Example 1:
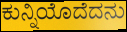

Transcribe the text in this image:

ಕುನ್ನಿಯೊದೆದನು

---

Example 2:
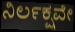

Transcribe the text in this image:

ನಿರ್ಲಕ್ಷವೇ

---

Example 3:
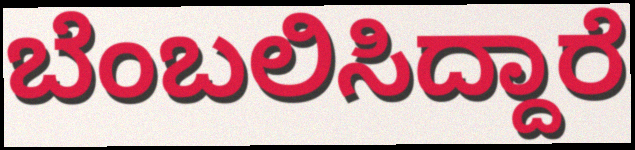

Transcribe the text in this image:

ಬೆಂಬಲಿಸಿದ್ದಾರೆ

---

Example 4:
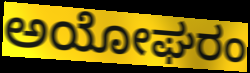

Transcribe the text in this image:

ಅಯೋಘರಂ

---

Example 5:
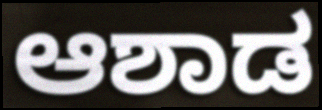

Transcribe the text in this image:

ಆಶಾಡ